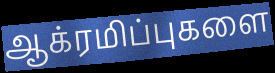
ஆக்ரமிப்புகளை